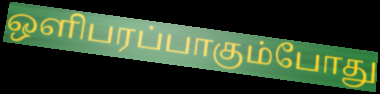
ஒளிபரப்பாகும்போது